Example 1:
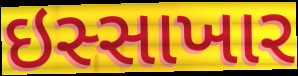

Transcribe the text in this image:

ઇસ્સાખાર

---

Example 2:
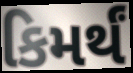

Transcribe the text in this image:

કિમર્થં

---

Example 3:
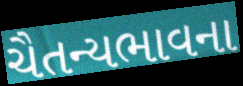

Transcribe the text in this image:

ચૈતન્યભાવના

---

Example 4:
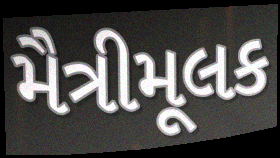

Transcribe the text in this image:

મૈત્રીમૂલક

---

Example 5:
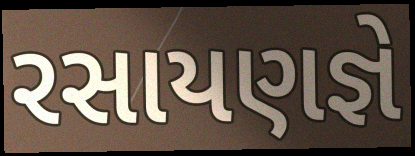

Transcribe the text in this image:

રસાયણજ્ઞે